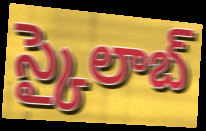
స్కైలాబ్